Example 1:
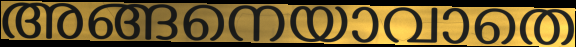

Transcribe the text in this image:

അങ്ങനെയാവാതെ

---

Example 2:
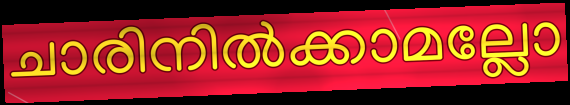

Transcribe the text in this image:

ചാരിനിൽക്കാമല്ലോ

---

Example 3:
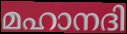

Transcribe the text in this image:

മഹാനദി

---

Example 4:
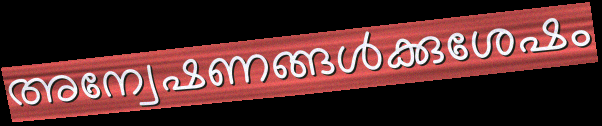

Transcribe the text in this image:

അന്വേഷണങ്ങൾക്കുശേഷം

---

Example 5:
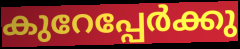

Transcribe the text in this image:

കുറേപ്പേർക്കു